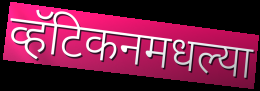
व्हॅटिकनमधल्या